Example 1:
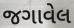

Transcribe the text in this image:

જગાવેલ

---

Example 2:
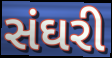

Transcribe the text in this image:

સંઘરી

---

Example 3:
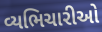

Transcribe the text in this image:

વ્યભિચારીઓ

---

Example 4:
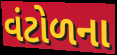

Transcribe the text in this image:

વંટોળના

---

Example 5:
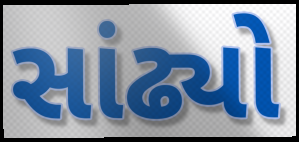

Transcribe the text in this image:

સાંઢ્યો